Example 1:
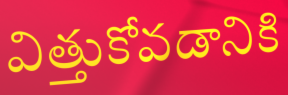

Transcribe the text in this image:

విత్తుకోవడానికి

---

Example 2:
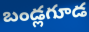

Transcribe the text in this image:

బండ్లగూడ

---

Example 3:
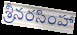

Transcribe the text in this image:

శ్రీనరసింహా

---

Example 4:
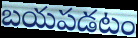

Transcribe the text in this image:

బయపడటం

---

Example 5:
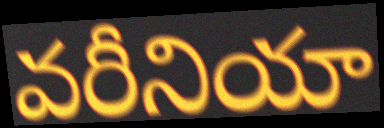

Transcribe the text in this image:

వరీనియా